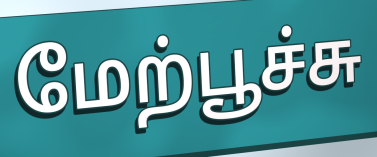
மேற்பூச்சு